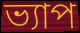
ভ্যাপ